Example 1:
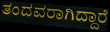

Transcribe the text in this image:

ತಂದವರಾಗಿದ್ದಾರೆ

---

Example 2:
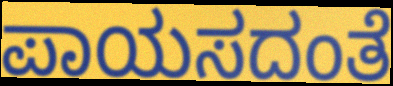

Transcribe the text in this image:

ಪಾಯಸದಂತೆ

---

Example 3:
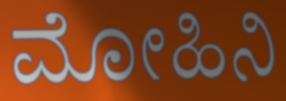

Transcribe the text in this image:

ಮೋಹಿನಿ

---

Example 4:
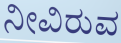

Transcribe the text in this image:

ನೀವಿರುವ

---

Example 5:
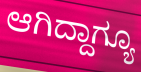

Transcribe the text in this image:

ಆಗಿದ್ದಾಗ್ಯೂ